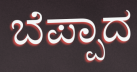
ಬೆಪ್ಪಾದ